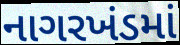
નાગરખંડમાં